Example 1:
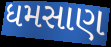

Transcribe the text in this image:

ધમસાણ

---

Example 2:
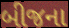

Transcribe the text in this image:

બીજના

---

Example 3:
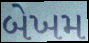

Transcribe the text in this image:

બેખમ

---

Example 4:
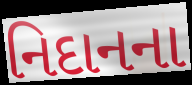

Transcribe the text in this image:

નિદાનના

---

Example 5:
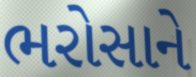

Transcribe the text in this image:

ભરોસાને